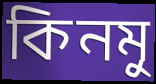
কিনমু